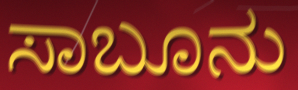
ಸಾಬೂನು